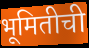
भूमितीची